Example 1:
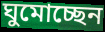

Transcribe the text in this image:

ঘুমোচ্ছেন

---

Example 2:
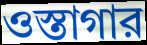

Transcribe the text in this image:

ওস্তাগার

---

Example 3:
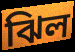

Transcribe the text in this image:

ঝিল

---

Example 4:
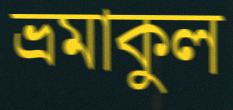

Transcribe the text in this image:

ভ্রমাকুল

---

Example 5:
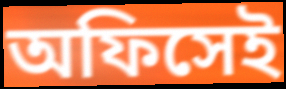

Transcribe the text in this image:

অফিসেই